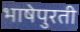
भाषेपुरती